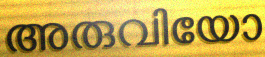
അരുവിയോ